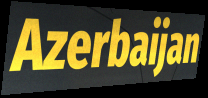
Azerbaijan